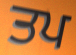
ਤਪ